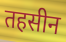
तहसीन